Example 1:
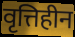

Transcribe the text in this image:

वृत्तिहीन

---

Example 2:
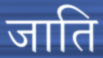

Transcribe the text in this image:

जाति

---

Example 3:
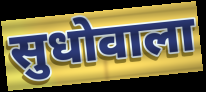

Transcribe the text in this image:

सुधोवाला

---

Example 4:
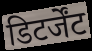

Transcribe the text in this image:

डिटर्जेंट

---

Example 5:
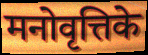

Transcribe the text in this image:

मनोवृत्तिके